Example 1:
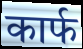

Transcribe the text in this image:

कार्फ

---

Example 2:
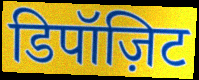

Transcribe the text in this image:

डिपॉज़िट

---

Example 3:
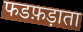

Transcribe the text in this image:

फडफ़ड़ाता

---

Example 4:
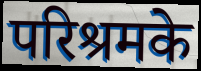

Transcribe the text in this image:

परिश्रमके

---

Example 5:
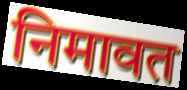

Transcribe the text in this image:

निमावत